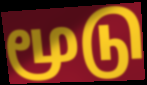
மூடு